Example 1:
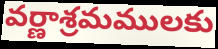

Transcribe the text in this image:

వర్ణాశ్రమములకు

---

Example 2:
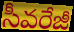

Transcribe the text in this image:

సీవరేజీ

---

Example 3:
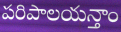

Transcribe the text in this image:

పరిపాలయన్తాం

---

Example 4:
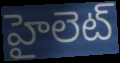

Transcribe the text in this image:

హైలెట్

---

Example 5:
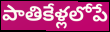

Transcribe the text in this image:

పాతికేళ్లలోపే